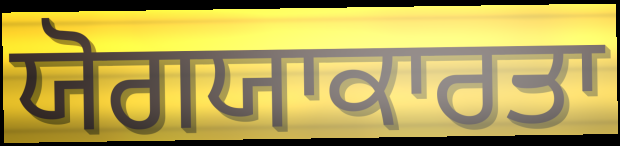
ਯੋਗਯਾਕਾਰਤਾ